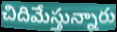
చిదిమేస్తున్నారు